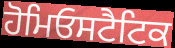
ਹੋਮਿਓਸਟੈਟਿਕ